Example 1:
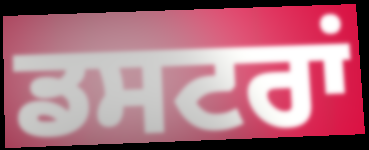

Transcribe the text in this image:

ਡਸਟਰਾਂ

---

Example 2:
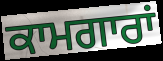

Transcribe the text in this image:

ਕਾਮਗਾਰਾਂ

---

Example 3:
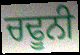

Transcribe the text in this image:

ਚਢੂਨੀ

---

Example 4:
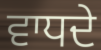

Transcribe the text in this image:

ਵਾਧਦੇ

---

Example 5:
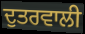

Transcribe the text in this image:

ਦੁਤਰਵਾਲੀ